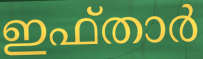
ഇഫ്താർ